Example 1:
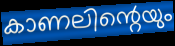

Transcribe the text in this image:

കാണലിന്റെയും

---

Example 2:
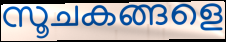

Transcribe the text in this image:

സൂചകങ്ങളെ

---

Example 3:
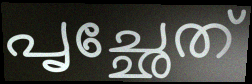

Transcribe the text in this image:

പൃച്ഛേത്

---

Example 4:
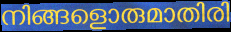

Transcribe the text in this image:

നിങ്ങളൊരുമാതിരി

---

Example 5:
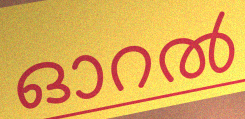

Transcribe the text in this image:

ഓറൽ